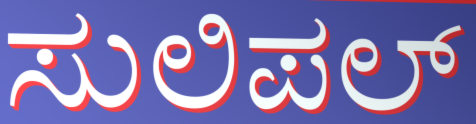
ಸುಲಿಪಲ್